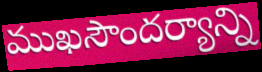
ముఖసౌందర్యాన్ని